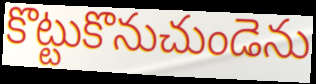
కొట్టుకొనుచుండెను